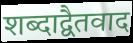
शब्दाद्वैतवाद